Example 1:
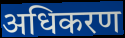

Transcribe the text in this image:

अधिकरण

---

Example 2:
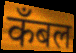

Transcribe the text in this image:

कँबल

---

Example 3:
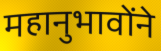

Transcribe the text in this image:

महानुभावोंने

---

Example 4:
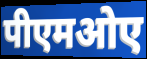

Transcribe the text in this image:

पीएमओए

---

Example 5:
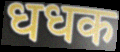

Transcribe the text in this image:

धधक